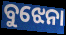
ବୁଝେନା